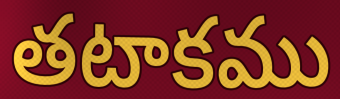
తటాకము